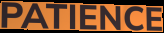
PATIENCE